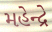
મહેન્દ્રે